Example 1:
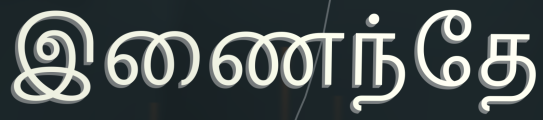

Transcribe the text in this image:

இணைந்தே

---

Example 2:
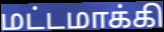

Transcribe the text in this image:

மட்டமாக்கி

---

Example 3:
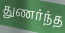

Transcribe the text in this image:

துணர்ந்த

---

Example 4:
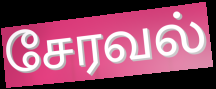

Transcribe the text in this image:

சேரவல்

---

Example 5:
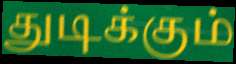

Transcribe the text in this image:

துடிக்கும்